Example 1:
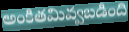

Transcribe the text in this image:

అంకితమివ్వబడింది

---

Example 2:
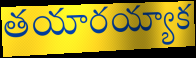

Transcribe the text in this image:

తయారయ్యాక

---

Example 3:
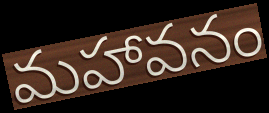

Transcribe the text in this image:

మహావనం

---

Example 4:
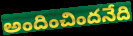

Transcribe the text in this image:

అందించిందనేది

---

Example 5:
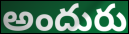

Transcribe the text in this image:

అందురు